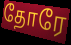
தோரே